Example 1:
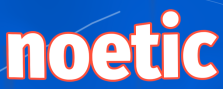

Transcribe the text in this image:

noetic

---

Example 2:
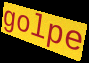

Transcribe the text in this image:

golpe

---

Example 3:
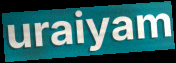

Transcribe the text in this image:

uraiyam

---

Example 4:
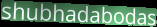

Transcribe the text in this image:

shubhadabodas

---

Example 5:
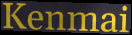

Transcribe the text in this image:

Kenmai